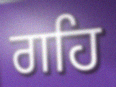
ਗਹਿ